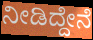
ನೀಡಿದ್ದೇನೆ